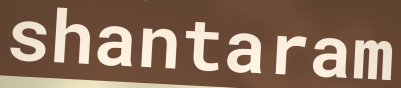
shantaram